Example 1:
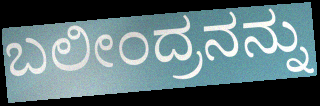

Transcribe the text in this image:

ಬಲೀಂದ್ರನನ್ನು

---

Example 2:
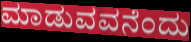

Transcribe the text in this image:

ಮಾಡುವವನೆಂದು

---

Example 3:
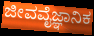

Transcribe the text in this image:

ಜೀವವೈಜ್ಞಾನಿಕ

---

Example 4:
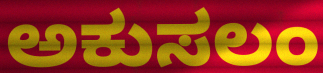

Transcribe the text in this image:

ಅಕುಸಲಂ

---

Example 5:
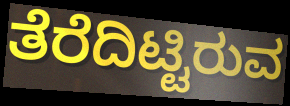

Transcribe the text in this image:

ತೆರೆದಿಟ್ಟಿರುವ